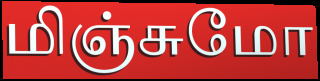
மிஞ்சுமோ